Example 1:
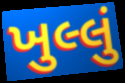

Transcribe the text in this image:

ખુલ્લું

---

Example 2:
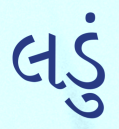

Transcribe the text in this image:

લડું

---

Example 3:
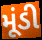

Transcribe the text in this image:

મૂંડી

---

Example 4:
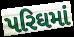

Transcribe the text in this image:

પરિઘમાં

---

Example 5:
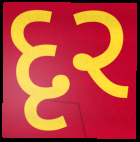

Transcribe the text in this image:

દૃર